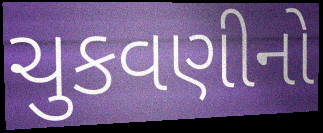
ચુકવણીનો